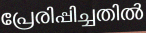
പ്രേരിപ്പിച്ചതിൽ